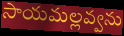
సాయమల్లవ్వను